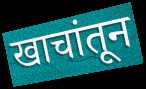
खाचांतून